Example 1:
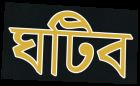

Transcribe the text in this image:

ঘটিব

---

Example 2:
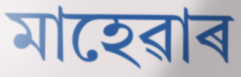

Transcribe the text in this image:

মাহেৱাৰ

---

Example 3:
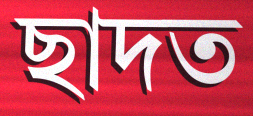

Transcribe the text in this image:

ছাদত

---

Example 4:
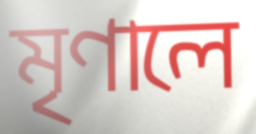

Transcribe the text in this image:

মৃণালে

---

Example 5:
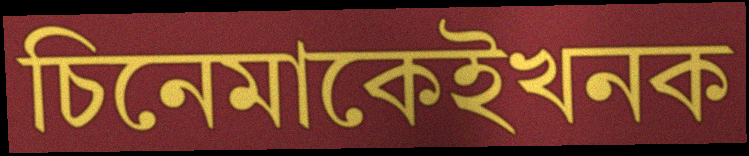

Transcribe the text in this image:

চিনেমাকেইখনক